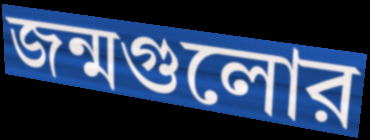
জন্মগুলোর